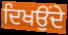
ਦਿਖਉਂਦੇ